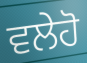
ਵਲੇਹੋ